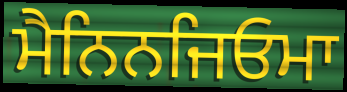
ਮੈਨਿਨਜਿਓਮਾ